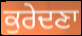
ਕੁਰੇਦਣਾ